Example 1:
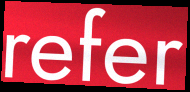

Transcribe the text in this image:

refer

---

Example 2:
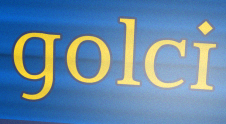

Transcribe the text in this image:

golci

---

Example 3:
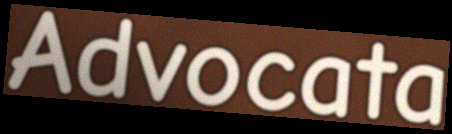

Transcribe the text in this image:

Advocata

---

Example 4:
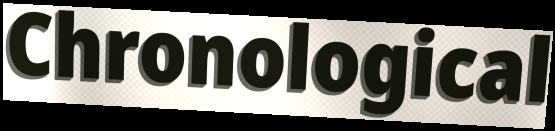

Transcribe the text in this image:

Chronological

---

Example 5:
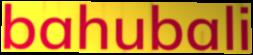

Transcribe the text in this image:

bahubali